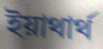
ইয়াথার্থ